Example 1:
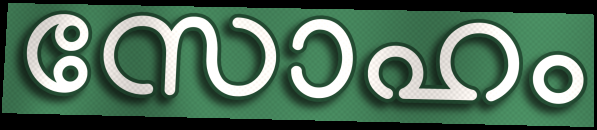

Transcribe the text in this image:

സോഹം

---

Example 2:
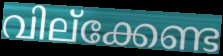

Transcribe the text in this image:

വില്ക്കേണ്ട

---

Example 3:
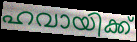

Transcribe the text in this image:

ഹവായിക്ക്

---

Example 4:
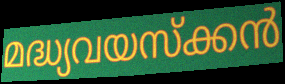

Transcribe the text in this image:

മദ്ധ്യവയസ്ക്കൻ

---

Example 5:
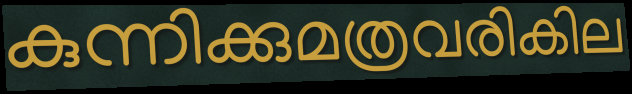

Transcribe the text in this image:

കുന്നിക്കുമത്രവരികില